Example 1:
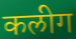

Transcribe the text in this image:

कलीग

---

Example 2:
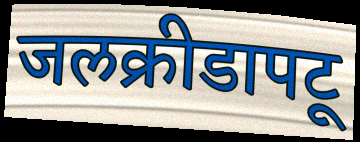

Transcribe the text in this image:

जलक्रीडापटू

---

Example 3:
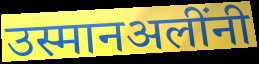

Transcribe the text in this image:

उस्मानअलींनी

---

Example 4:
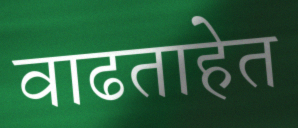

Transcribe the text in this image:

वाढताहेत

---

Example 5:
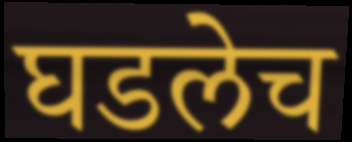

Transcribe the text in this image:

घडलेच